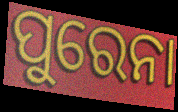
ପୁରେନା